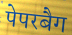
पेपरबैग